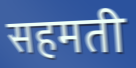
सहमती